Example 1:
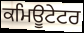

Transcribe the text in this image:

ਕਮਿਊਟੇਟਰ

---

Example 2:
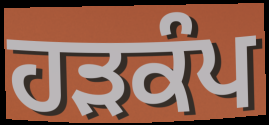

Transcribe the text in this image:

ਹੜਕੰਪ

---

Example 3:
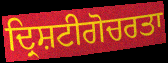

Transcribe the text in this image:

ਦ੍ਰਿਸ਼ਟੀਗੋਚਰਤਾ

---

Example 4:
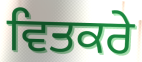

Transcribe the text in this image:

ਵਿਤਕਰੇ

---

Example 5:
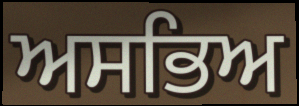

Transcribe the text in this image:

ਅਸਭਿਅ